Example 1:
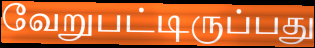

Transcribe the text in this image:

வேறுபட்டிருப்பது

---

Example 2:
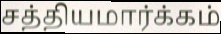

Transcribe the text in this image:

சத்தியமார்க்கம்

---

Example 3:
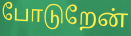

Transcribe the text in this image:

போடுறேன்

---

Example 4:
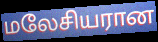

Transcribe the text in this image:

மலேசியரான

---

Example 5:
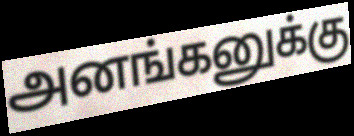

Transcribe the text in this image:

அனங்கனுக்கு